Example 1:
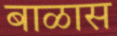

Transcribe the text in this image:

बाळास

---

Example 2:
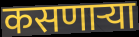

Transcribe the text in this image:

कसणाऱ्या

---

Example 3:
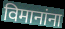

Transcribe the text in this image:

विमानांना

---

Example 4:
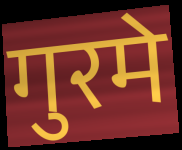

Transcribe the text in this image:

गुरमे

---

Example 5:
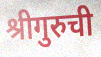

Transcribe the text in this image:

श्रीगुरुची